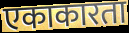
एकाकारता